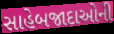
સાહેબજાદાઓની